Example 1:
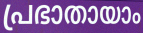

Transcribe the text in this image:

പ്രഭാതായാം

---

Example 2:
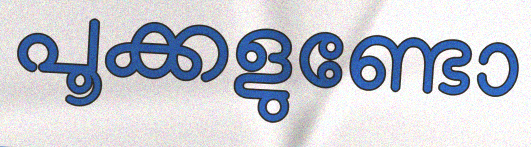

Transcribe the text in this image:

പൂക്കളുണ്ടോ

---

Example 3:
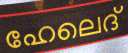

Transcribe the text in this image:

ഹേലെദ്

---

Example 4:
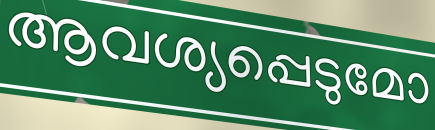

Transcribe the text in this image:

ആവശ്യപ്പെടുമോ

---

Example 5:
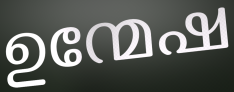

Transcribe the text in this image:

ഉന്മേഷ